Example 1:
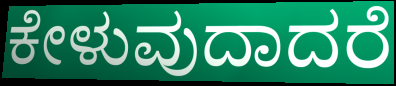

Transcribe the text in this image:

ಕೇಳುವುದಾದರೆ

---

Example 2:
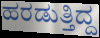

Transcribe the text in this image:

ಹರಡುತ್ತಿದ್ದ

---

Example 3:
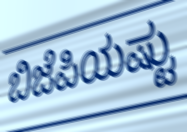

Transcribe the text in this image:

ಬಿಜೆಪಿಯಷ್ಟು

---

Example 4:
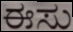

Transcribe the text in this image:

ಈಸು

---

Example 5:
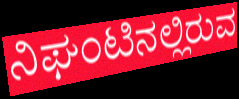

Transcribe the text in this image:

ನಿಘಂಟಿನಲ್ಲಿರುವ